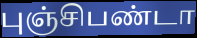
புஞ்சிபண்டா